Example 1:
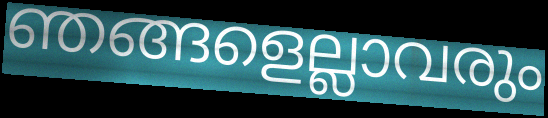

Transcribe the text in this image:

ഞങ്ങളെല്ലാവരും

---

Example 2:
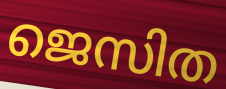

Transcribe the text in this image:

ജെസിത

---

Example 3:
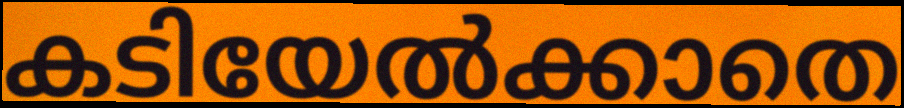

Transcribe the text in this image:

കടിയേൽക്കാതെ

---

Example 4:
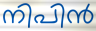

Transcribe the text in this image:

നിപിൻ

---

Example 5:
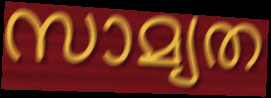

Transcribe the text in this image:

സാമ്യത